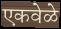
एकवेळे